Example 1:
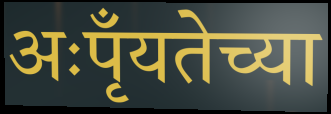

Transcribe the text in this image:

अःपृँयतेच्या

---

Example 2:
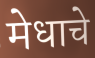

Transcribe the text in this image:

मेधाचे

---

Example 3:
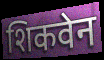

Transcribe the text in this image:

शिकवेन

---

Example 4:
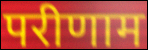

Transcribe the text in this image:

परीणाम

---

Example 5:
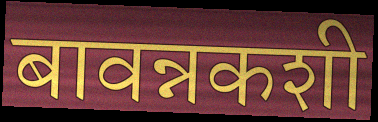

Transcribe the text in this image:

बावन्नकशी